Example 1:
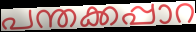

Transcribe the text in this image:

പന്തക്കപ്പാറ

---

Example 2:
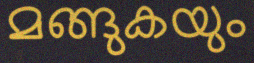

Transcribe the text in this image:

മങ്ങുകയും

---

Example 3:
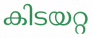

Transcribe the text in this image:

കിടയറ്റ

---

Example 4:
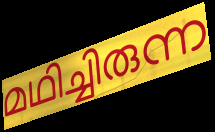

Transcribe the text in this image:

മഥിച്ചിരുന്ന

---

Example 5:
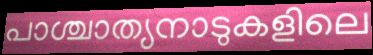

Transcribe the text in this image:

പാശ്ചാത്യനാടുകളിലെ